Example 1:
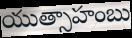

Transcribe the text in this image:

యుత్సాహంబు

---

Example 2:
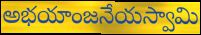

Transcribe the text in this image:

అభయాంజనేయస్వామి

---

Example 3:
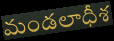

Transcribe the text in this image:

మండలాధీశ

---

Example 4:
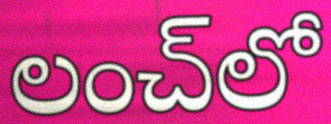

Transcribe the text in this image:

లంచ్‌లో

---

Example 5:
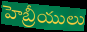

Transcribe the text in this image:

హెబ్రీయులు